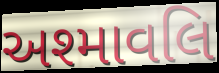
અશ્માવલિ